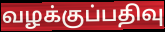
வழக்குப்பதிவு